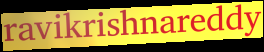
ravikrishnareddy